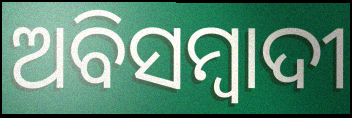
ଅବିସମ୍ବାଦୀ